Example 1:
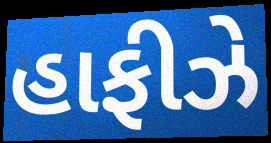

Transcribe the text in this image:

હાફીઝે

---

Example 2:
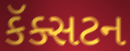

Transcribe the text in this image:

કૅક્સટન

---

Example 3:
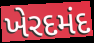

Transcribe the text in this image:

ખેરદમંદ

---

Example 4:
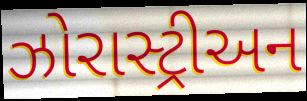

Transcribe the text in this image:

ઝોરાસ્ટ્રીઅન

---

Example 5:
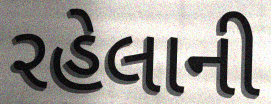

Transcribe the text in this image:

રહેલાની